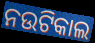
ନଉଟିକାଲ